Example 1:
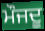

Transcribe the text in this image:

ਮੌਜਦੂ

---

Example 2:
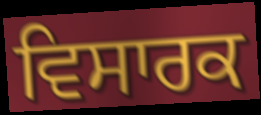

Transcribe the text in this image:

ਵਿਸਾਰਕ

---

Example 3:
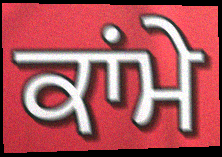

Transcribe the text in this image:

ਕਾਂਮੇ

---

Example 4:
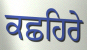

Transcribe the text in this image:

ਕਛਹਿਰੇ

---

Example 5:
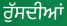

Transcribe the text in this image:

ਰੁੱਸਦੀਆਂ